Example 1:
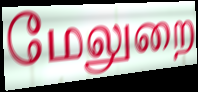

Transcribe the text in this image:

மேலுறை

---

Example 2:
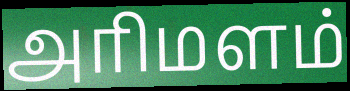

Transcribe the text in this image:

அரிமளம்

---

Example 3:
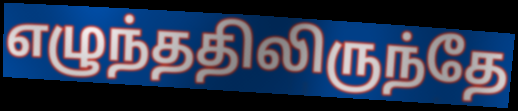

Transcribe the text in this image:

எழுந்ததிலிருந்தே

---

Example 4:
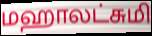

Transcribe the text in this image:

மஹாலட்சுமி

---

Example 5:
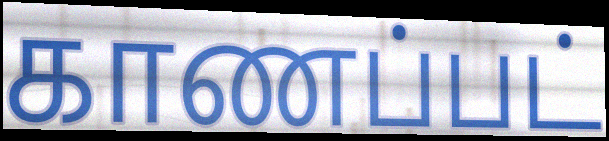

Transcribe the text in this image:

காணப்பட்